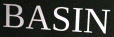
BASIN